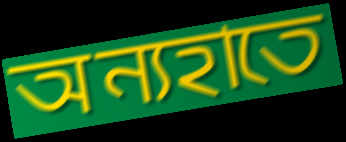
অন্যহাতে